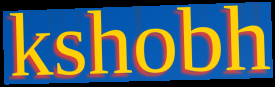
kshobh